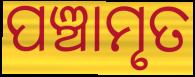
ପଞ୍ଚାମୃତ